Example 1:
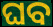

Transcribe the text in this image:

ଘବ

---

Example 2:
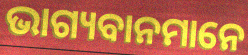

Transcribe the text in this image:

ଭାଗ୍ୟବାନମାନେ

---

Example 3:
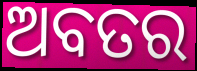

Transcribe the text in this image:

ଅବତର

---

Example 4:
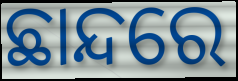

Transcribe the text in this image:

ଛାନ୍ଦରେ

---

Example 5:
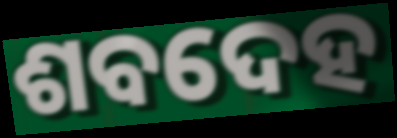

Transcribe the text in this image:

ଶବଦେହ